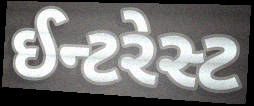
ઈન્ટરેસ્ટ